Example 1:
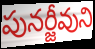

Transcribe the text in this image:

పునర్జీవుని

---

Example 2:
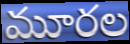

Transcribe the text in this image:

మూరల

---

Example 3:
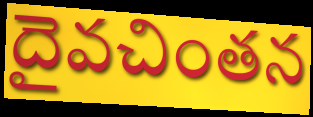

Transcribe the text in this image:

దైవచింతన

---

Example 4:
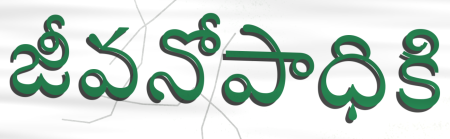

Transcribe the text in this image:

జీవనోపాధికి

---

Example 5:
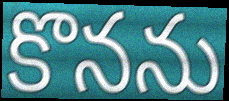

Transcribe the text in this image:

కొనను